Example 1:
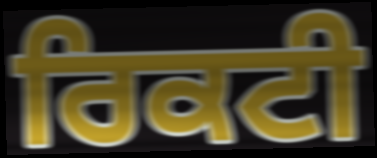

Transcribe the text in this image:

ਰਿਕਟੀ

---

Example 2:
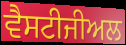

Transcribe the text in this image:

ਵੈਸਟੀਜੀਅਲ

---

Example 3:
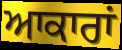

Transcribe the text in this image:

ਆਕਾਰਾਂ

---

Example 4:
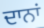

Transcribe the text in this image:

ਦਾਨਾਂ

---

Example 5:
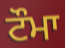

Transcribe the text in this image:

ਟੌਮਾ